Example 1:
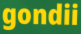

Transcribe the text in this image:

gondii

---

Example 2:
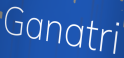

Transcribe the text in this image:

Ganatri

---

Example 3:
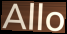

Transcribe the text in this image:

Allo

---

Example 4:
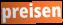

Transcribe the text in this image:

preisen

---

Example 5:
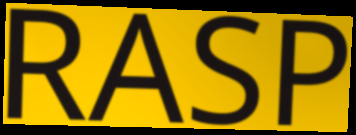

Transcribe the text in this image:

RASP